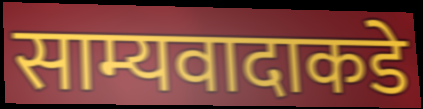
साम्यवादाकडे